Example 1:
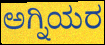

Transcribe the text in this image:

ಅಗ್ನಿಯರ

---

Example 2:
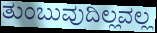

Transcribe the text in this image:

ತುಂಬುವುದಿಲ್ಲವಲ್ಲ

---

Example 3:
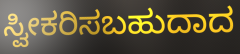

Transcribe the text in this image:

ಸ್ವೀಕರಿಸಬಹುದಾದ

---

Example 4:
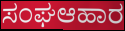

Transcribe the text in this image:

ಸಂಘಆಹಾರ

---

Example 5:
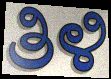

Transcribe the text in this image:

ತಿಳಿ